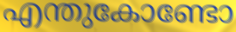
എന്തുകോണ്ടോ